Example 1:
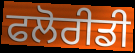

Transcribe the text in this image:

ਫਲੋਰੀਡੀ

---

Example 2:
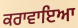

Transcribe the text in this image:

ਕਰਾਵਾਇਆ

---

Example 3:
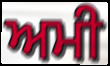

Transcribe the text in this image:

ਅਮੀ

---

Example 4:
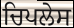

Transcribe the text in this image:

ਚਿਪਲੇਸ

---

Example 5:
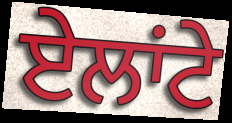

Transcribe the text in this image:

ਏਲਾਂਟੇ